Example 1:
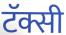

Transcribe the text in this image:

टॅक्सी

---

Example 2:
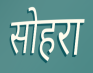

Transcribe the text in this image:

सोहरा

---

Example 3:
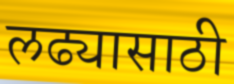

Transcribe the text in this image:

लढ्यासाठी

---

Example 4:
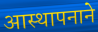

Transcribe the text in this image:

आस्थापनाने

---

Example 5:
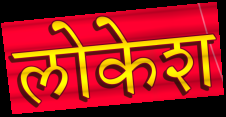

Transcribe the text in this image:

लोकेश